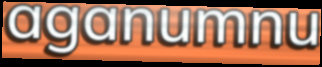
aganumnu